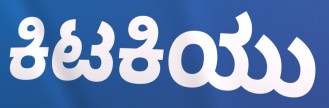
ಕಿಟಕಿಯು